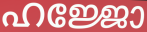
ഹജ്ജോ